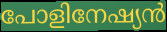
പോളിനേഷ്യൻ